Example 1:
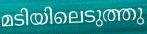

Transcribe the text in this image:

മടിയിലെടുത്തു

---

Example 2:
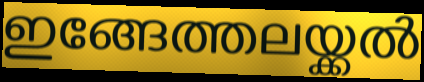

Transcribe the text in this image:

ഇങ്ങേത്തലയ്ക്കൽ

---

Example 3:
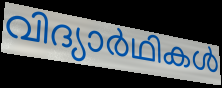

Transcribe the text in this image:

വിദ്യാർഥികൾ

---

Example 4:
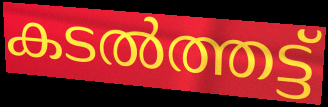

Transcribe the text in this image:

കടൽത്തട്ട്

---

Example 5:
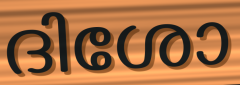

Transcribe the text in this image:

ദിശോ